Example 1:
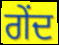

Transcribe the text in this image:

ਗੇਂਦ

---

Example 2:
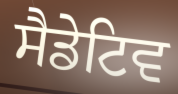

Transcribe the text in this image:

ਸੈਡੇਟਿਵ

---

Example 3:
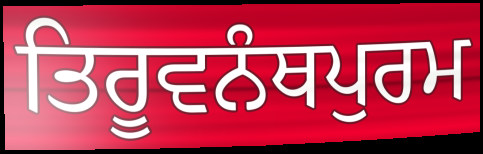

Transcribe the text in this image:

ਤਿਰੂਵਨੰਥਪੁਰਮ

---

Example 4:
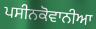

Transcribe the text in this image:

ਪਸੀਨਕੋਵਾਨੀਆ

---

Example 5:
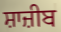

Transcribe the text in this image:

ਸ਼ਾਜ਼ੀਬ